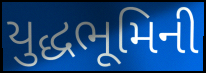
યુદ્ધભૂમિની